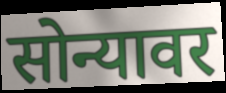
सोन्यावर